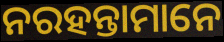
ନରହନ୍ତାମାନେ